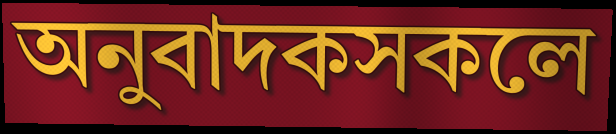
অনুবাদকসকলে